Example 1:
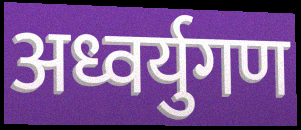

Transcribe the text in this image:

अध्वर्युगण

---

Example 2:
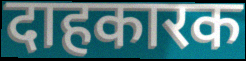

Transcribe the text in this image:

दाहकारक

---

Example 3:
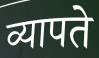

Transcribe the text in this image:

व्यापते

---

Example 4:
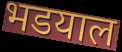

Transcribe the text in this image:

भडयाल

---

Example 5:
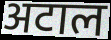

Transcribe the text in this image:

अटाल